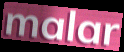
malar